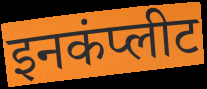
इनकंप्लीट